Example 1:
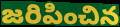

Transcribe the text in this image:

జరిపించిన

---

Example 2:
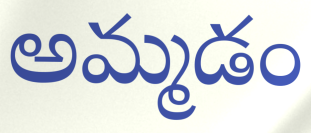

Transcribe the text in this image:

అమ్మడం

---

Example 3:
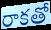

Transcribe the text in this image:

రాకతో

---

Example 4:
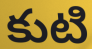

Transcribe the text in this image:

కుటి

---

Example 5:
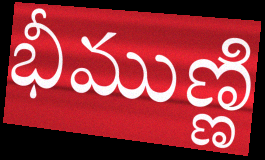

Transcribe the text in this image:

భీముణ్ణి